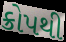
ક્રોપથી